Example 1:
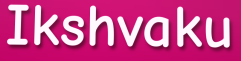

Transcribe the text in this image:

Ikshvaku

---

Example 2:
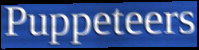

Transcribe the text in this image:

Puppeteers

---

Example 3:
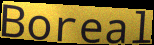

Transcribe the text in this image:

Boreal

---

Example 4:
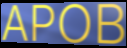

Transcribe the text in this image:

APOB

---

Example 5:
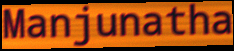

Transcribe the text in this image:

Manjunatha